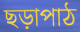
ছড়াপাঠ